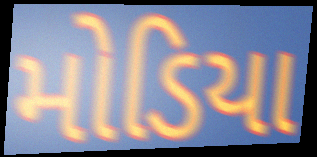
મોડિયા